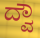
ದ್ವೌ